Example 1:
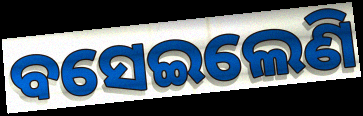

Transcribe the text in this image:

ବସେଇଲେଣି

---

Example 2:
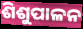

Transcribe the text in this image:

ଶିଶୁପାଳନ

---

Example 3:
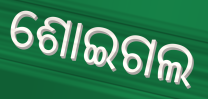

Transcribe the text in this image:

ଶୋଇଗଲ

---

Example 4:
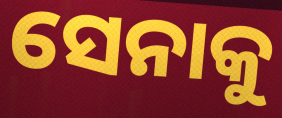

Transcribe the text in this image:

ସେନାକୁ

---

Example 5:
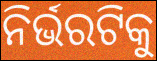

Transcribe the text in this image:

ନିର୍ଭରଟିକୁ